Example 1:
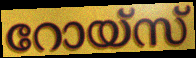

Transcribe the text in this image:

റോയ്സ്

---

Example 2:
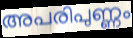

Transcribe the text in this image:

അപരിപുണ്ണം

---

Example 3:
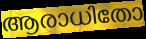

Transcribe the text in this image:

ആരാധിതോ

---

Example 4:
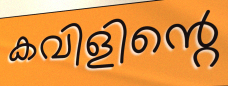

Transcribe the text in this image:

കവിളിന്റെ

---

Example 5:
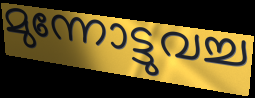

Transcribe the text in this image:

മുന്നോട്ടുവച്ച